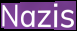
Nazis